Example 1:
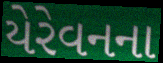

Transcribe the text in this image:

યેરેવનના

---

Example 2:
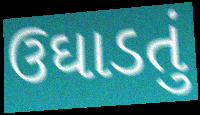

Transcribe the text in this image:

ઉઘાડતું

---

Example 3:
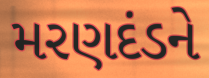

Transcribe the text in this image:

મરણદંડને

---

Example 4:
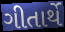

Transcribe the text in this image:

ગીતાર્થે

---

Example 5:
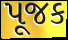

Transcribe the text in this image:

પૂજક